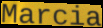
Marcia